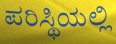
ಪರಿಸ್ಥಿಯಲ್ಲಿ